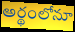
అర్థంలోనూ